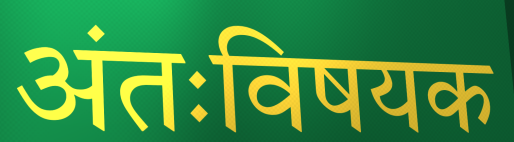
अंतःविषयक